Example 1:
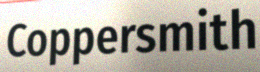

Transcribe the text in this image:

Coppersmith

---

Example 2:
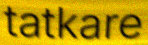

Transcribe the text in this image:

tatkare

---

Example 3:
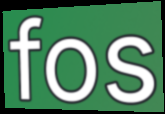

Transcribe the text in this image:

fos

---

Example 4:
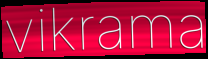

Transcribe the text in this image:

vikrama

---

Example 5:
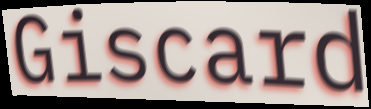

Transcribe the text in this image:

Giscard